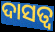
ଦାସତ୍ବ